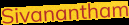
Sivanantham